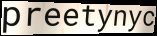
preetynyc